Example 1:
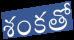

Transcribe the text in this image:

శంకతో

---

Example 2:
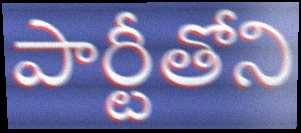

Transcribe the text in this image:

పార్టీతోని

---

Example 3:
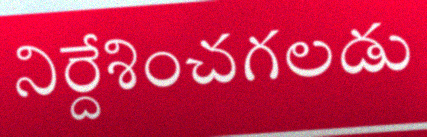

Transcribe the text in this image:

నిర్దేశించగలడు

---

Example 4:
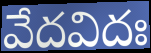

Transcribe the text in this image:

వేదవిదః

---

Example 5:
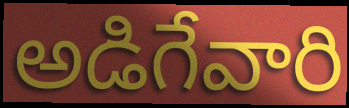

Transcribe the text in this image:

అడిగేవారి